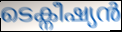
ടെക്നീഷ്യൻ